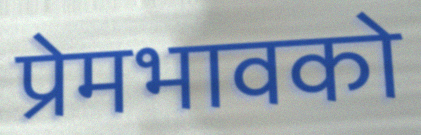
प्रेमभावको